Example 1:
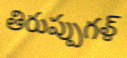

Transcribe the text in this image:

తిరుప్పుగళ్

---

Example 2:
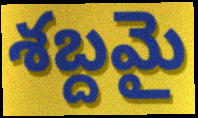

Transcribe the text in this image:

శబ్దమై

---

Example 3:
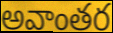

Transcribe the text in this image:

అవాంతర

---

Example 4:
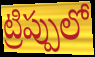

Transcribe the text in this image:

ట్రిప్పులో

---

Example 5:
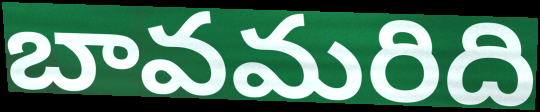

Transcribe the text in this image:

బావమరిది